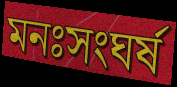
মনঃসংঘর্ষ